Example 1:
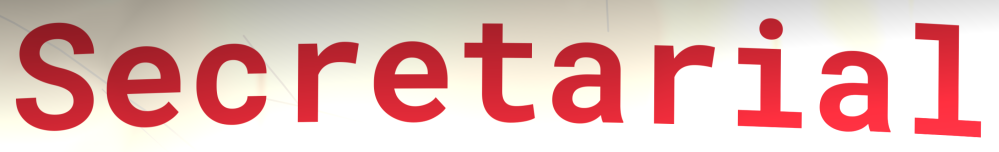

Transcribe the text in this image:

Secretarial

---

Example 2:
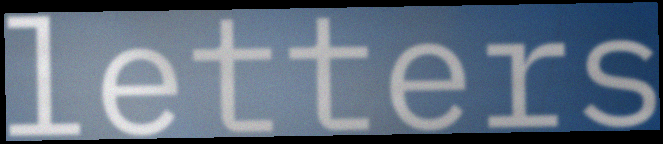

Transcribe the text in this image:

letters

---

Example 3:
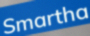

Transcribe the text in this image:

Smartha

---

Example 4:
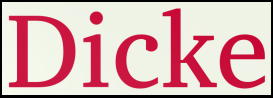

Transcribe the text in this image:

Dicke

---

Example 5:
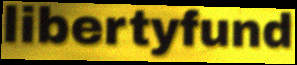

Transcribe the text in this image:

libertyfund